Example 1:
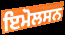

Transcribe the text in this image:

ਇਮੋਲਸਨ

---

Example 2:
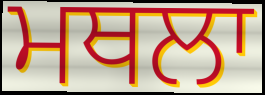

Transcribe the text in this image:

ਮਥਲਾ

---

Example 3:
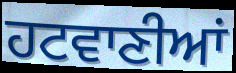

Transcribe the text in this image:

ਹਟਵਾਣੀਆਂ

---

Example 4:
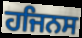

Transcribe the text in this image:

ਹਜਿਨਸ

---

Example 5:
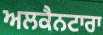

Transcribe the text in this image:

ਅਲਕੈਨਟਾਰਾ